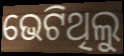
ଭେଟିଥିଲୁ